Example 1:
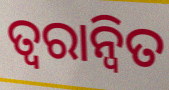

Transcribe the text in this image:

ତ୍ୱରାନ୍ଵିତ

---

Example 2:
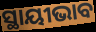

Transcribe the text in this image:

ସ୍ଥାୟୀଭାବ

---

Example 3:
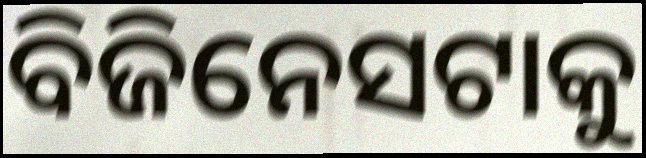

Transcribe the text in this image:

ବିଜିନେସଟାକୁ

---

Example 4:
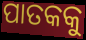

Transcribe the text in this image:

ପାତକକୁ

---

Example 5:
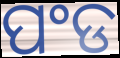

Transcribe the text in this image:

ପଂଡ